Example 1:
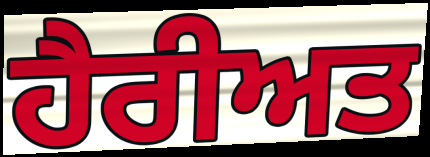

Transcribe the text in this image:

ਹੈਰੀਅਤ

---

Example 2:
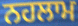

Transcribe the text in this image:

ਨਹਲਾਮ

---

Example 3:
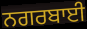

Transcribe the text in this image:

ਨਗਰਬਾਈ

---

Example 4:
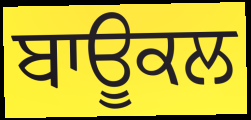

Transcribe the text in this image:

ਬਾਊਕਲ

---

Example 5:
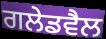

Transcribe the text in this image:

ਗਲੇਡਵੈਲ